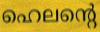
ഹെലന്റെ